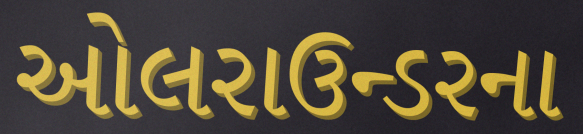
ઓલરાઉન્ડરના